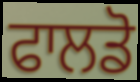
ਫਾਲਡੋ